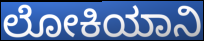
ಲೋಕಿಯಾನಿ